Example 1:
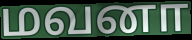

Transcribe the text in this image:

மவனா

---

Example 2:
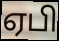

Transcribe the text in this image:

ஏபி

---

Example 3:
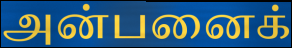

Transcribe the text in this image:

அன்பனைக்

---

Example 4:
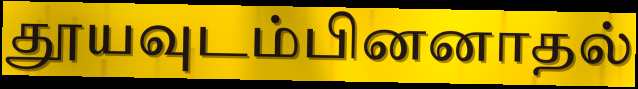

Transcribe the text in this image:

தூயவுடம்பினனாதல்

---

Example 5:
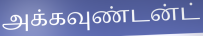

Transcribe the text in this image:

அக்கவுண்டன்ட்